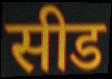
सीड